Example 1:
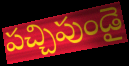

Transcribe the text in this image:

పచ్చిపుండై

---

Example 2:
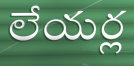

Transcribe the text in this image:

లేయర్ల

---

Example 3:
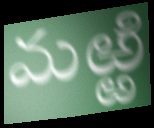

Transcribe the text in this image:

మఱ్ఱి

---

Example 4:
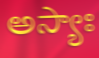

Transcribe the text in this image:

అస్యాః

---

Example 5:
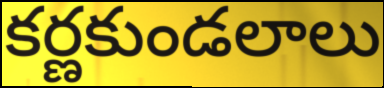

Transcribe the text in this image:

కర్ణకుండలాలు